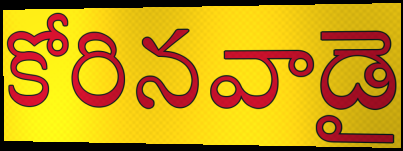
కోరినవాడై